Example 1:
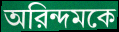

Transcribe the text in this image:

অরিন্দমকে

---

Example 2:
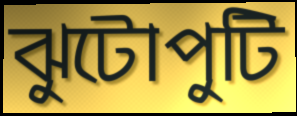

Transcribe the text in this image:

ঝুটোপুটি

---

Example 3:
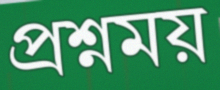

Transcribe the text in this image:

প্রশ্নময়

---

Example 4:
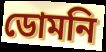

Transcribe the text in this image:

ডোমনি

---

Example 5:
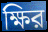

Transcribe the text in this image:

ক্ষির